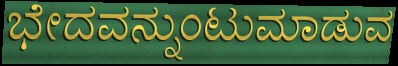
ಭೇದವನ್ನುಂಟುಮಾಡುವ